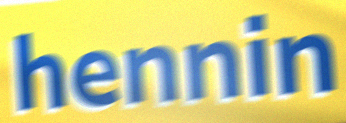
hennin